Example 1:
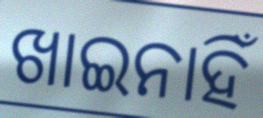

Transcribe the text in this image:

ଖାଇନାହିଁ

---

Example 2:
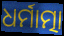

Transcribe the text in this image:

ଧର୍ମାତ୍ମା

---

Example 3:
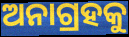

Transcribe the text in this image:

ଅନାଗ୍ରହକୁ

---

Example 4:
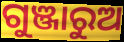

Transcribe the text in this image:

ଗୁଞ୍ଜାରୁଅ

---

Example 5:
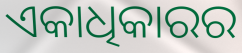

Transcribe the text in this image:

ଏକାଧିକାରର